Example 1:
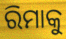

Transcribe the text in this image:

ରିମାକୁ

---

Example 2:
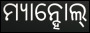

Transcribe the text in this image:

ମ୍ୟାନ୍ହୋଲ୍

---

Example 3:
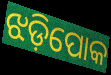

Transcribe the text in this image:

ଝଡ଼ିପୋକ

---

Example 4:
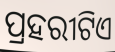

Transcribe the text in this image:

ପ୍ରହରୀଟିଏ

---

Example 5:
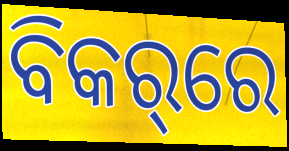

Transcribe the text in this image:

ବିକର୍‌ରେ